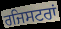
ਰਜਿਸਟਰਾਂ